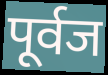
पूर्वज